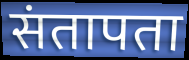
संतापता